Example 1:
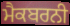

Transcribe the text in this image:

ਮੈਕਬਰਨੀ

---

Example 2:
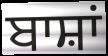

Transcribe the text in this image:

ਬਾਸ਼ਾਂ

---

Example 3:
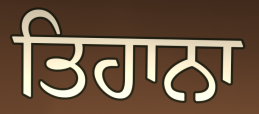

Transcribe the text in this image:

ਤਿਹਾਨਾ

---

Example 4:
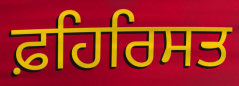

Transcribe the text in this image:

ਫ਼ਹਿਰਿਸਤ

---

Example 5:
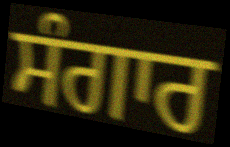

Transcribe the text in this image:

ਸੰਗਾਰ